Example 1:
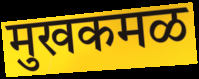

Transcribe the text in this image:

मुखकमळ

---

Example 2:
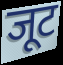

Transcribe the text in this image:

जूट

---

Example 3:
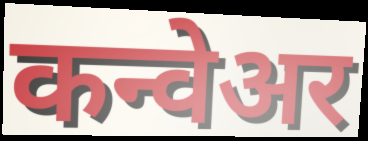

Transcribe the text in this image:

कन्वेअर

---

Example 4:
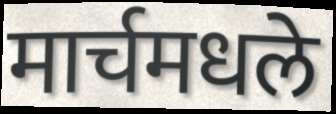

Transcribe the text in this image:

मार्चमधले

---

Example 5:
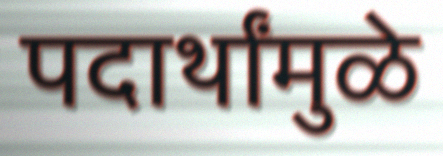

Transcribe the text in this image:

पदार्थांमुळे